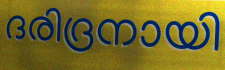
ദരിദ്രനായി